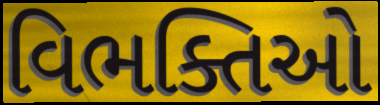
વિભક્તિઓ